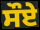
ਸੌਏ